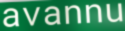
avannu